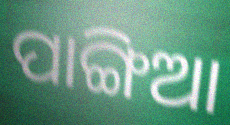
ପାଙ୍ଗିଆ